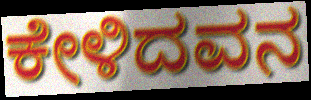
ಕೇಳಿದವನ